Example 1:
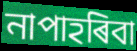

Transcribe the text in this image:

নাপাহৰিবা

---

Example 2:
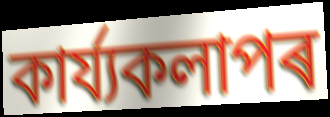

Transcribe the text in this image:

কাৰ্য্যকলাপৰ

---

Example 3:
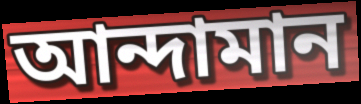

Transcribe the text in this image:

আন্দামান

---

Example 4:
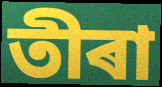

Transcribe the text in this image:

তীৰা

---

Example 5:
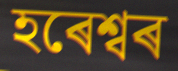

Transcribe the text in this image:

হৰেশ্বৰ